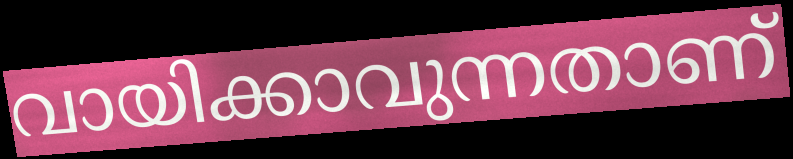
വായിക്കാവുന്നതാണ്